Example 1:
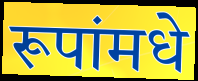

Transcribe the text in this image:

रूपांमधे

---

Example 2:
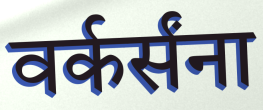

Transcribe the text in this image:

वर्कर्संना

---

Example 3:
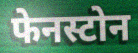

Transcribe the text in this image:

फेनस्टोन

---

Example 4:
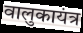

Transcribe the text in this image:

वालुकायंत्र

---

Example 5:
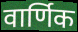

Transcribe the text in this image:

वार्णिक